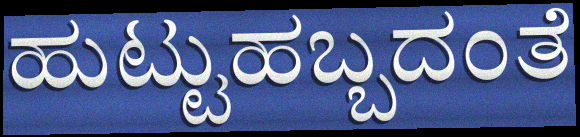
ಹುಟ್ಟುಹಬ್ಬದಂತೆ